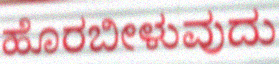
ಹೊರಬೀಳುವುದು